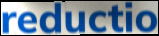
reductio